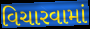
વિચારવામાં